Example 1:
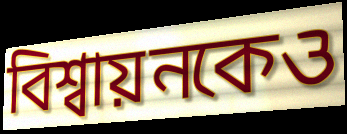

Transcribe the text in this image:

বিশ্বায়নকেও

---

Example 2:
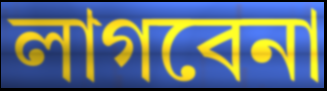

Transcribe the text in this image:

লাগবেনা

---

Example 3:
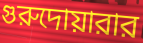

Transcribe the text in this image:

গুরুদোয়ারার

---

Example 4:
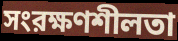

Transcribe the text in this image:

সংরক্ষণশীলতা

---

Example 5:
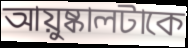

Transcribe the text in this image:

আয়ুষ্কালটাকে